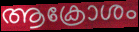
ആക്രോശം